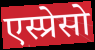
एस्प्रेसो